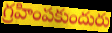
గ్రహింపకుందురు